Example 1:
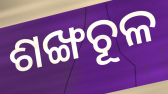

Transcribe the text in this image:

ଶଙ୍ଖଚୂଳ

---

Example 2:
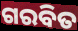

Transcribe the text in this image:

ଗରବିତ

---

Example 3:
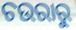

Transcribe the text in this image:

ଚଉରାରୁ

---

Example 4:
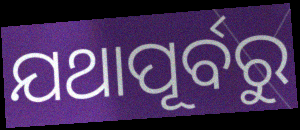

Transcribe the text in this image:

ଯଥାପୂର୍ବରୁ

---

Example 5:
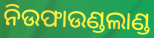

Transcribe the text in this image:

ନିଉଫାଉଣ୍ଡଲାଣ୍ଡ